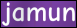
jamun